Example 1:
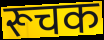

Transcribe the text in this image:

रूचक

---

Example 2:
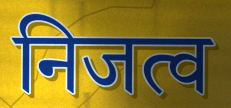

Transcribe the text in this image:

निजत्व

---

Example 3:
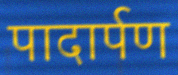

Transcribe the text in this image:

पादार्पण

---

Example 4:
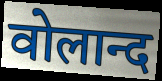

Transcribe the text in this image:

वोलान्द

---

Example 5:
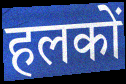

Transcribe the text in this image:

हलकों